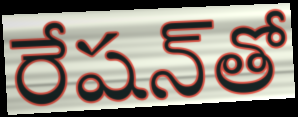
రేషన్‌తో